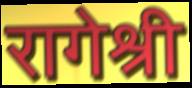
रागेश्री